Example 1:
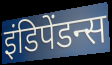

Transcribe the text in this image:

इंडिपेंडन्स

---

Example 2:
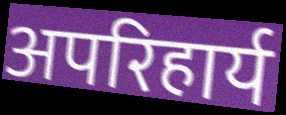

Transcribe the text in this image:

अपरिहार्य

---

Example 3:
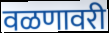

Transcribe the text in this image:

वळणावरी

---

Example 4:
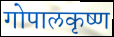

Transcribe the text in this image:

गोपालकृष्ण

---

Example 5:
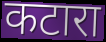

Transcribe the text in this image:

कटारा